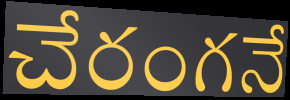
చేరంగనే